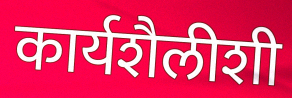
कार्यशैलीशी